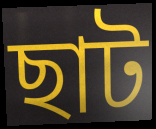
ছাট